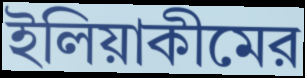
ইলিয়াকীমের